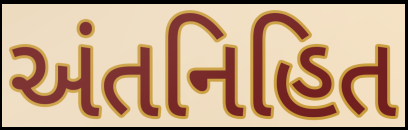
અંતનિહિત